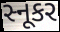
સ્નૂકર